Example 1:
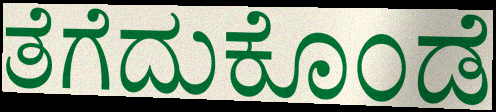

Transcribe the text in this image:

ತೆಗೆದುಕೊಂಡೆ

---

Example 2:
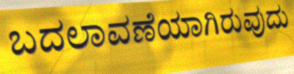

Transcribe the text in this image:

ಬದಲಾವಣೆಯಾಗಿರುವುದು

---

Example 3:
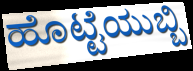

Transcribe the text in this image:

ಹೊಟ್ಟೆಯುಬ್ಬಿ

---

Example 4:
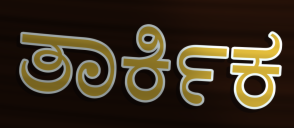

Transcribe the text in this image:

ತಾರ್ಕಿಕ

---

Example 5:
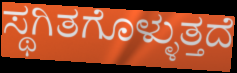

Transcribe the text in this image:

ಸ್ಥಗಿತಗೊಳ್ಳುತ್ತದೆ